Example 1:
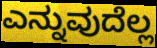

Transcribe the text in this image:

ಎನ್ನುವುದೆಲ್ಲ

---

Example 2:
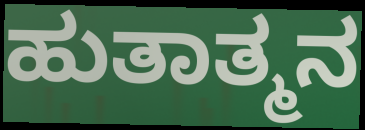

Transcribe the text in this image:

ಹುತಾತ್ಮನ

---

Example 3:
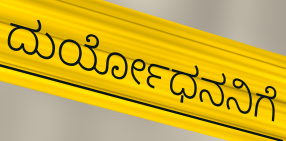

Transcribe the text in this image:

ದುರ್ಯೋಧನನಿಗೆ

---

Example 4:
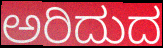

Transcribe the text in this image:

ಅರಿದುದ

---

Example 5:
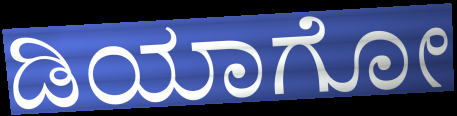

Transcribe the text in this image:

ಡಿಯಾಗೋ